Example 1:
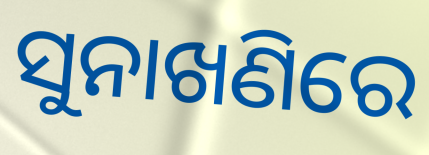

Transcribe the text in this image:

ସୁନାଖଣିରେ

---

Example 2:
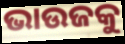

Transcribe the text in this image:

ଭାଉଜକୁ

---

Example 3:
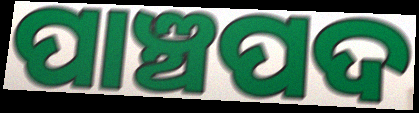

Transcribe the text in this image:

ପାଞ୍ଚପଦ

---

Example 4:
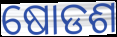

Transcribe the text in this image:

ଷୋଡଶ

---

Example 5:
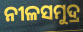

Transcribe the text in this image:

ନୀଳସମୁଦ୍ର